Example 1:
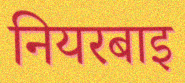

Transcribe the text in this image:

नियरबाइ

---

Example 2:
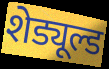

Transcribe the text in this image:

शेड्यूल्ड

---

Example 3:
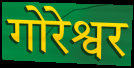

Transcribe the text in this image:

गोरेश्वर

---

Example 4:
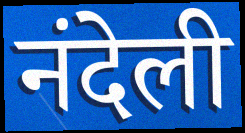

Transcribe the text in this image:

नंदेली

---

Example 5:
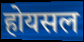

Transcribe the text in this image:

होयसल